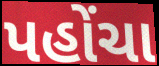
પહોંચા